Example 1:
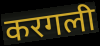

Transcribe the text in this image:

करगली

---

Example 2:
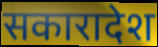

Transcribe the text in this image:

सकारादेश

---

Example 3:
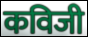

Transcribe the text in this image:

कविजी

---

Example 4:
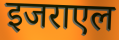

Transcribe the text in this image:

इजराएल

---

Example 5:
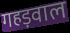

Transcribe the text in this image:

गहड़वाल